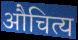
औचित्‍य